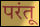
परंतू